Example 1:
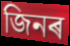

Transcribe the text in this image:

জিনৰ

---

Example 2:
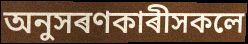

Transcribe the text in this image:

অনুসৰণকাৰীসকলে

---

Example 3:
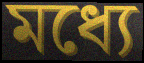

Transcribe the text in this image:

মধ্যে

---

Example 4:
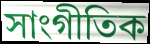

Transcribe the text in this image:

সাংগীতিক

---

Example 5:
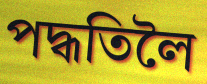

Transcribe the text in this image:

পদ্ধতিলৈ